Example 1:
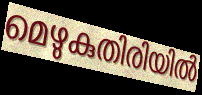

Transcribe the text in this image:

മെഴുകുതിരിയിൽ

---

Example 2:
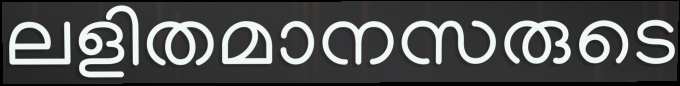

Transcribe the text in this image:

ലളിതമാനസരുടെ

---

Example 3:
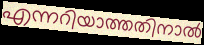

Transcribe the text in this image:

എന്നറിയാത്തതിനാൽ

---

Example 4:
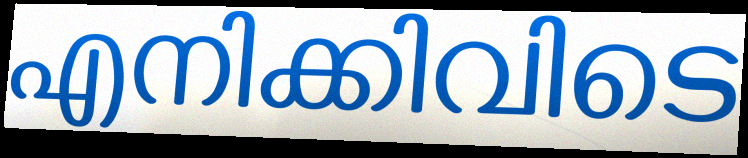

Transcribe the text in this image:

എനിക്കിവിടെ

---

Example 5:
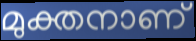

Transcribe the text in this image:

മുക്തനാണ്